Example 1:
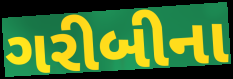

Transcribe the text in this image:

ગરીબીના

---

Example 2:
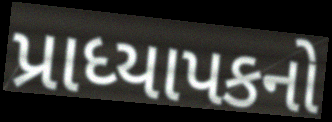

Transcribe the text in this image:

પ્રાધ્યાપકનો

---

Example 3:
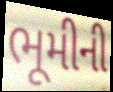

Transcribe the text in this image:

ભૂમીની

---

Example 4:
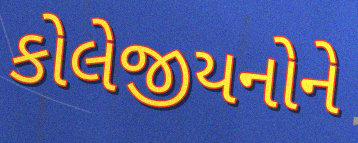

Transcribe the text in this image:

કોલેજીયનોને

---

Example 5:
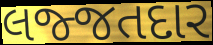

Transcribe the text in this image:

લજ્જતદાર